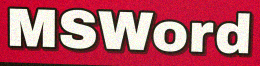
MSWord